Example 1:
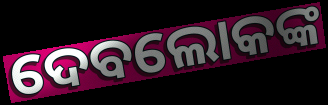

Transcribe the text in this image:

ଦେବଲୋକଙ୍କ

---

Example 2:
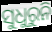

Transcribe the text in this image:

ସୁଧୁରୁନି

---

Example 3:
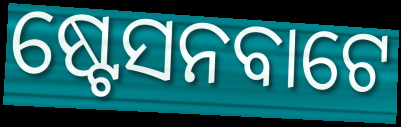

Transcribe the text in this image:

ଷ୍ଟେସନବାଟେ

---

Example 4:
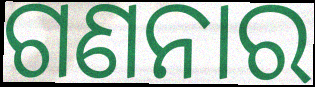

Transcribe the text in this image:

ଗଣନାର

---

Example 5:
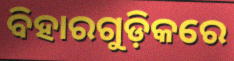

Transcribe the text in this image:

ବିହାରଗୁଡ଼ିକରେ